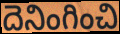
దెనింగించి